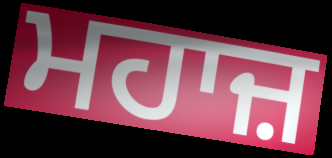
ਮਹਾਜ਼